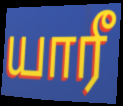
யாரீ